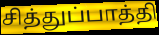
சித்துப்பாத்தி